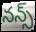
నన్స్